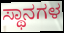
ಸ್ಥಾನಗಳ